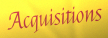
Acquisitions